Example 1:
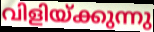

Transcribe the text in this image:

വിളിയ്ക്കുന്നു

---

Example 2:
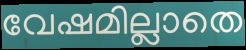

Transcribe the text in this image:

വേഷമില്ലാതെ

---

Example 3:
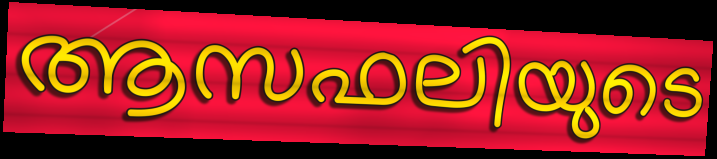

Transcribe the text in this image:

ആസഫലിയുടെ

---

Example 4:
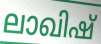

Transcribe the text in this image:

ലാഖിഷ്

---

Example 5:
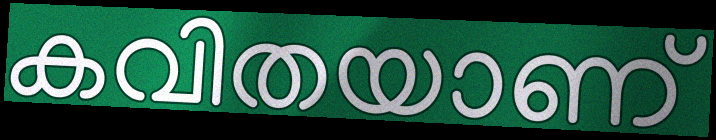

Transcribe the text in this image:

കവിതയാണ്